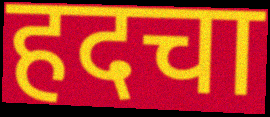
हदचा